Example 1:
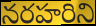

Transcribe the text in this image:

నరహరిని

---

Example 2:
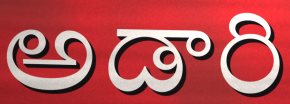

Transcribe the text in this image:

అడారి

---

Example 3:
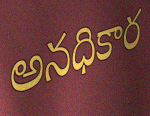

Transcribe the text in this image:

అనధికార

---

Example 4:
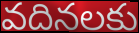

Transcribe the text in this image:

వదినలకు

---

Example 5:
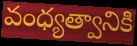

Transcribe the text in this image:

వంధ్యత్వానికి